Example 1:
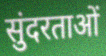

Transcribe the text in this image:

सुंदरताओं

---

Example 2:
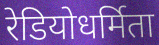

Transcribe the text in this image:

रेडियोधर्मिता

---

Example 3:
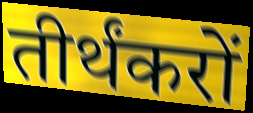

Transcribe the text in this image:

तीर्थंकरों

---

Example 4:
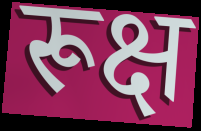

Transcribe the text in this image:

रूक्ष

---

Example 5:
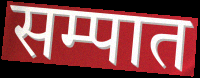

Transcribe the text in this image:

सम्पात